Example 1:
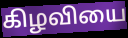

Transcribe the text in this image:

கிழவியை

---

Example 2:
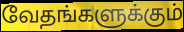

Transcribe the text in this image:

வேதங்களுக்கும்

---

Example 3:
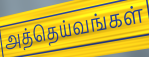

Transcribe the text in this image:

அத்தெய்வங்கள்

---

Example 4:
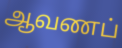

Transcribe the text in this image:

ஆவணப்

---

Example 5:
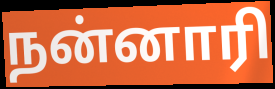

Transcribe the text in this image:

நன்னாரி